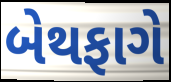
બેથફાગે